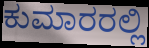
ಕುಮಾರರಲ್ಲಿ